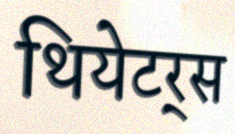
थियेटर्स